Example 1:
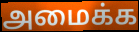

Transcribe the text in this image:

அமைக்க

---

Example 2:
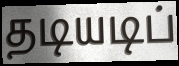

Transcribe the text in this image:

தடியடிப்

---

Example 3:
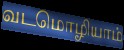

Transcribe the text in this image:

வடமொழியாம்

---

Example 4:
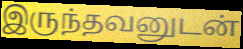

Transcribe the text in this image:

இருந்தவனுடன்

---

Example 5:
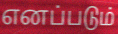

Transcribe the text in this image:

எனப்படும்